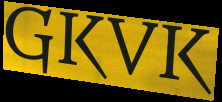
GKVK